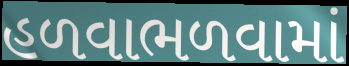
હળવાભળવામાં